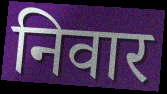
निवार